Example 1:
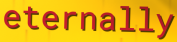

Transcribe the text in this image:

eternally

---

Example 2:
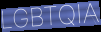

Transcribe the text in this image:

LGBTQIA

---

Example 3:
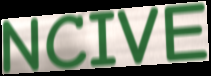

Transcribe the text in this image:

NCIVE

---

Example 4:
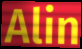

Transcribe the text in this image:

Alin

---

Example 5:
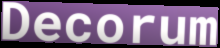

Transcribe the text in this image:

Decorum